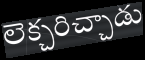
లెక్చరిచ్చాడు